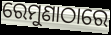
ରେମୁଣାଠାରେ